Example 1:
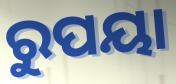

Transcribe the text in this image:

ରୁପୟା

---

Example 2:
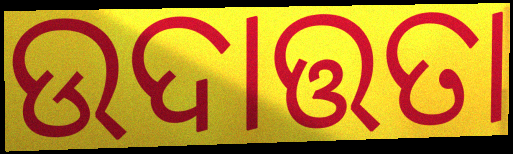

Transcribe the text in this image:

ଉଦାତ୍ତତା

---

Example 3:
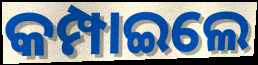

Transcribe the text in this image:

କମ୍ପାଇଲେ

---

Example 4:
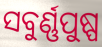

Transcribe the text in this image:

ସବୁର୍ଣ୍ଣପୁଷ୍ପ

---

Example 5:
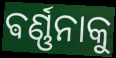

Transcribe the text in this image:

ଵର୍ଣ୍ଣନାକୁ